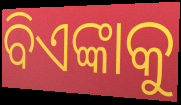
ବିଏଙ୍କାକୁ